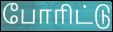
போரிட்டு